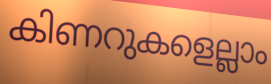
കിണറുകളെല്ലാം